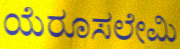
ಯೆರೂಸಲೇಮಿ